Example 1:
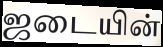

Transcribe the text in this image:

ஜடையின்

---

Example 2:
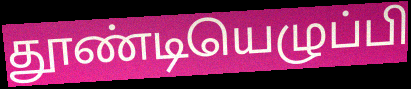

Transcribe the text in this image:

தூண்டியெழுப்பி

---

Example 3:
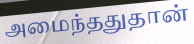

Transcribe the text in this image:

அமைந்ததுதான்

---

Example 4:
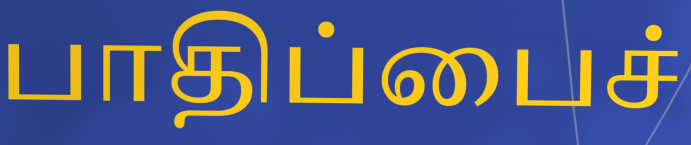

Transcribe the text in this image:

பாதிப்பைச்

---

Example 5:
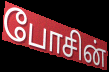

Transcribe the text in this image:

போசின்